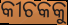
କୀଚକକୁ